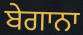
ਬੇਗਾਨਾ